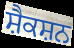
ਸ਼ੈਕਸ਼ਨ